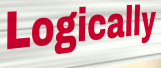
Logically